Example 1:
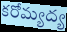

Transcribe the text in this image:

కరోమ్యద్య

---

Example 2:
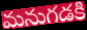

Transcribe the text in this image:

మనుగడకి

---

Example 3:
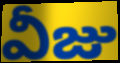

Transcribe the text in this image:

వీజు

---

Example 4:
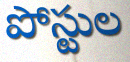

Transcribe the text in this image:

పోస్టుల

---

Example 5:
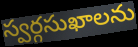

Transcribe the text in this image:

స్వర్గసుఖాలను